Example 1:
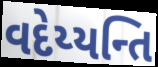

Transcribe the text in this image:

વદેય્યન્તિ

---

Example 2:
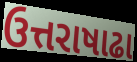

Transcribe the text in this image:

ઉત્તરાષાઢા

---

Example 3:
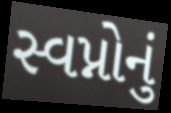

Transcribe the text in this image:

સ્વપ્નોનું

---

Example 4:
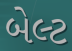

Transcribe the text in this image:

બેલ્ટ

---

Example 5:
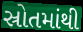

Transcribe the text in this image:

સ્રોતમાંથી